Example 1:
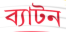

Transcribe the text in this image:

ব্যাটন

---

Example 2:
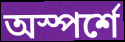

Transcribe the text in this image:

অস্পর্শে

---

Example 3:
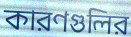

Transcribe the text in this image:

কারণগুলির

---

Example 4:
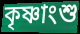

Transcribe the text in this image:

কৃষ্ণাংশু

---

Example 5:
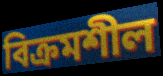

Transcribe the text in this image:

বিক্রমশীল